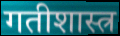
गतीशास्त्र